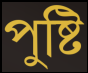
পুষ্টি